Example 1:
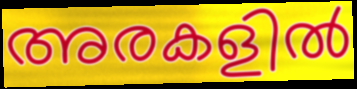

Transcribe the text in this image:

അരകളിൽ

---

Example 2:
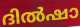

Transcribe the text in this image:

ദിൽഷാ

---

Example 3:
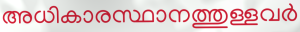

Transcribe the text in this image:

അധികാരസ്ഥാനത്തുള്ളവർ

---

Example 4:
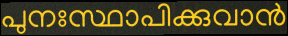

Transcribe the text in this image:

പുനഃസ്ഥാപിക്കുവാൻ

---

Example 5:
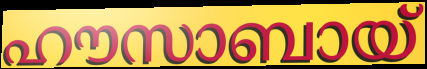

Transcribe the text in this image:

ഹൗസാബായ്